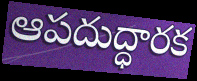
ఆపదుద్ధారక